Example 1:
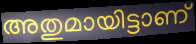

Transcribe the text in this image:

അതുമായിട്ടാണ്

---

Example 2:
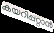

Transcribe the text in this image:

കയറിപ്പറ്റാൻ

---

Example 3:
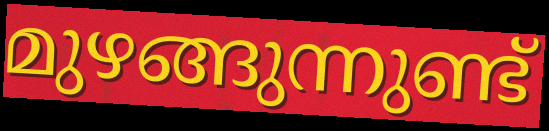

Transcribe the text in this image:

മുഴങ്ങുന്നുണ്ട്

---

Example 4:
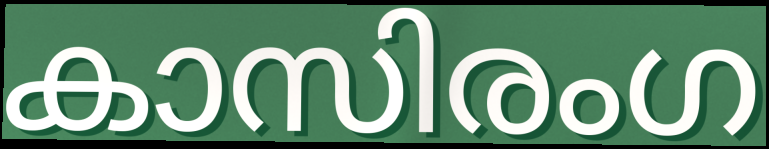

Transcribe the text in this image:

കാസിരംഗ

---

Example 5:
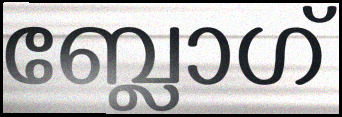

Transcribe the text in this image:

ബ്ലോഗ്